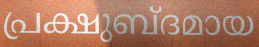
പ്രക്ഷുബ്ദമായ